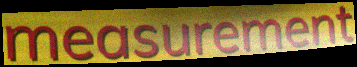
measurement